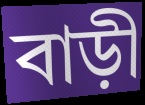
বাড়ী